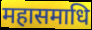
महासमाधि